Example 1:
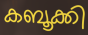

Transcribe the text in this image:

കബൂക്കി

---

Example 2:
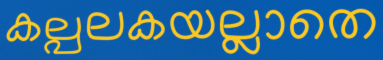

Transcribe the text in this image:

കല്പലകയല്ലാതെ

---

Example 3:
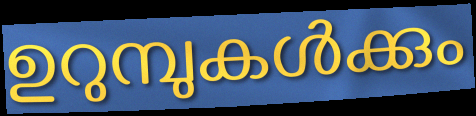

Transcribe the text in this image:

ഉറുമ്പുകൾക്കും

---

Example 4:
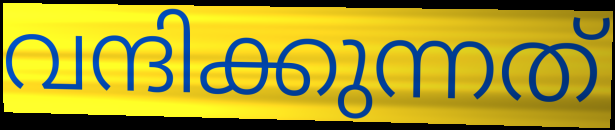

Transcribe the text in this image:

വന്ദിക്കുന്നത്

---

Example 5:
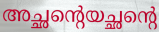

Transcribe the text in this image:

അച്ഛന്റെയച്ഛന്റെ